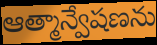
ఆత్మాన్వేషణను